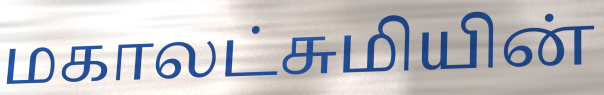
மகாலட்சுமியின்